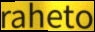
raheto